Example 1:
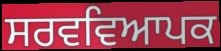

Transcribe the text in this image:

ਸਰਵਵਿਆਪਕ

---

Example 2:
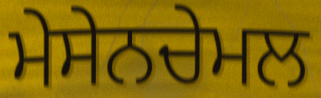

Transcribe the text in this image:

ਮੇਸੇਨਚੇਮਲ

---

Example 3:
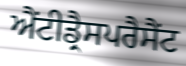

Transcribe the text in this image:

ਐਂਟੀਡ੍ਰੈਸਪਰੈਸੈਂਟ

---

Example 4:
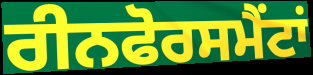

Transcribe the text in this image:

ਰੀਨਫੋਰਸਮੈਂਟਾਂ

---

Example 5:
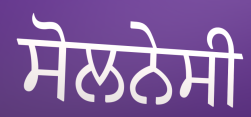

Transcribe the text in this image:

ਸੋਲਨੇਸੀ